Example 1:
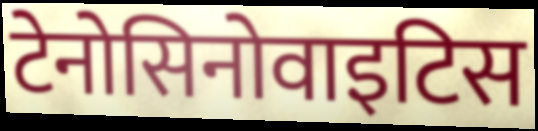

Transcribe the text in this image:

टेनोसिनोवाइटिस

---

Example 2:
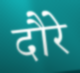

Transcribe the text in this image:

दौरे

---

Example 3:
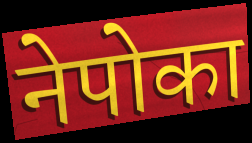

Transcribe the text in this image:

नेपोका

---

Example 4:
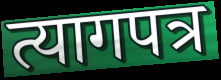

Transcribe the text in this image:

त्यागपत्र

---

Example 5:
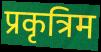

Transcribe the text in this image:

प्रकृत्रिम